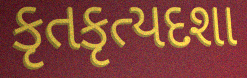
કૃતકૃત્યદશા